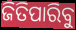
ଜିତିପାରିବୁ